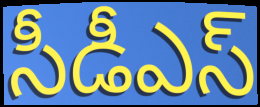
సీడీఎస్